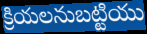
క్రియలనుబట్టియు